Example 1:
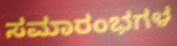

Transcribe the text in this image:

ಸಮಾರಂಭಗಳ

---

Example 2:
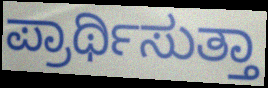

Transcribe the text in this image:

ಪ್ರಾರ್ಥಿಸುತ್ತಾ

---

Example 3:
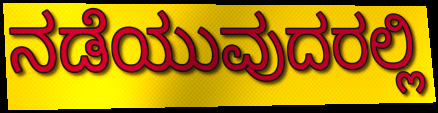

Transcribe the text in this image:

ನಡೆಯುವುದರಲ್ಲಿ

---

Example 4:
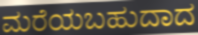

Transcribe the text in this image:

ಮರೆಯಬಹುದಾದ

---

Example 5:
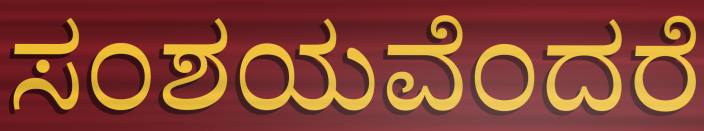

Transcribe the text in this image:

ಸಂಶಯವೆಂದರೆ